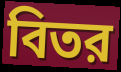
বিতর